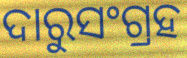
ଦାରୁସଂଗ୍ରହ